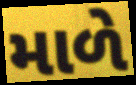
માળે